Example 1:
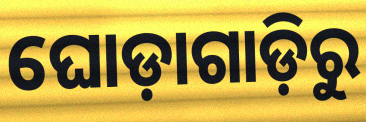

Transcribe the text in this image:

ଘୋଡ଼ାଗାଡ଼ିରୁ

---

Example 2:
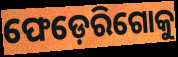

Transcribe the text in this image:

ଫେଡ଼େରିଗୋକୁ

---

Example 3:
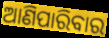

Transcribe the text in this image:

ଆଣିପାରିବାର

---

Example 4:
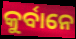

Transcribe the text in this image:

କୁର୍ବାନେ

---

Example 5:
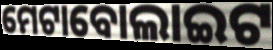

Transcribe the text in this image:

ମେଟାବୋଲାଇଟ